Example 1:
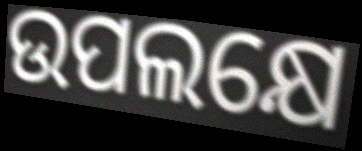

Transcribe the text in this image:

ଉପଲକ୍ଷେ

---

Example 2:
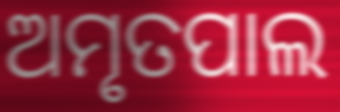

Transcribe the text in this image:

ଅମୃତପାଲ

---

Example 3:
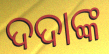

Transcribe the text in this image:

ଦଦାଙ୍କ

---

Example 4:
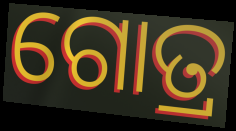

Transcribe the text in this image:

ଗୋତ୍ର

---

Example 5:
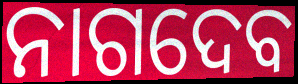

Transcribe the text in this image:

ନାଗଦେବ